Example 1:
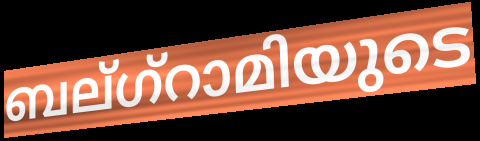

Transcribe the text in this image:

ബല്ഗ്റാമിയുടെ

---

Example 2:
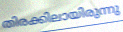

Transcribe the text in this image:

തിരക്കിലായിരുന്നു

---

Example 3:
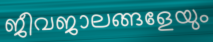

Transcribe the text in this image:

ജീവജാലങ്ങളേയും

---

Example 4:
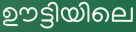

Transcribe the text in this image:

ഊട്ടിയിലെ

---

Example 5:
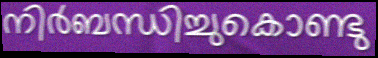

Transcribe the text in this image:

നിർബന്ധിച്ചുകൊണ്ടു